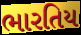
ભારતિય